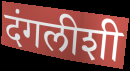
दंगलीशी